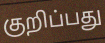
குறிப்பது